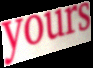
yours